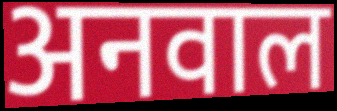
अनवाल